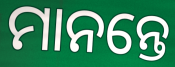
ମାନନ୍ତେ